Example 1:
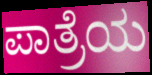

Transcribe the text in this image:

ಪಾತ್ರೆಯ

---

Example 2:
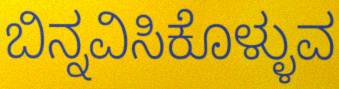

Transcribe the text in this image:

ಬಿನ್ನವಿಸಿಕೊಳ್ಳುವ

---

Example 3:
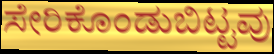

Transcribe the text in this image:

ಸೇರಿಕೊಂಡುಬಿಟ್ಟವು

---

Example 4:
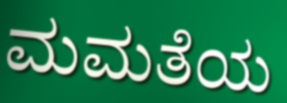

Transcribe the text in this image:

ಮಮತೆಯ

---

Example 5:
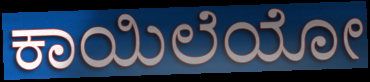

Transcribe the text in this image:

ಕಾಯಿಲೆಯೋ